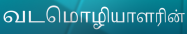
வடமொழியாளரின்